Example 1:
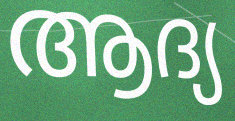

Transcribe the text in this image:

ആദ്യ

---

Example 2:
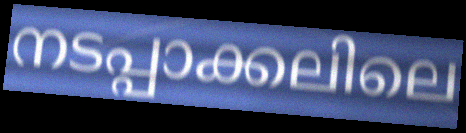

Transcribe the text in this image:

നടപ്പാക്കലിലെ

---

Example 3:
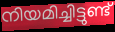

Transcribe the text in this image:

നിയമിച്ചിട്ടുണ്ട്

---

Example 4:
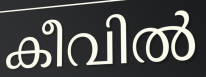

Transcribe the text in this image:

കീവിൽ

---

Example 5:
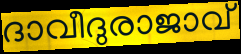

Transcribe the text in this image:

ദാവീദുരാജാവ്